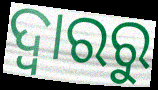
ଦ୍ଵାରରୁ